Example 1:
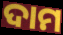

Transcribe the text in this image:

ଦାମ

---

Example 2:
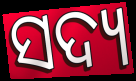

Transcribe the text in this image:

ସଦ୍ୟ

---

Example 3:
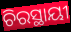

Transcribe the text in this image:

ଚିରସ୍ଥାୟୀ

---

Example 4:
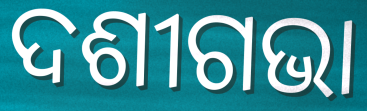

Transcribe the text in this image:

ଦଶୀଗଭା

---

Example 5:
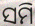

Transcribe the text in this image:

ସମି